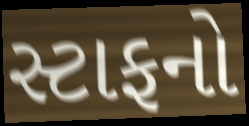
સ્ટાફનો